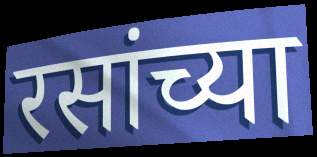
रसांच्या